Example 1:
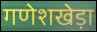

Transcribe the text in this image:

गणेशखेड़ा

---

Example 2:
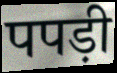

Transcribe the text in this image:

पपड़ी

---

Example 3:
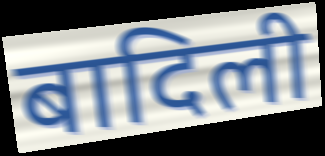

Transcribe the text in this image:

बादिली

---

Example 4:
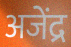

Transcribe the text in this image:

अजेंद्र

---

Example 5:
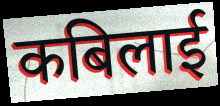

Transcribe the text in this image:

कबिलाई